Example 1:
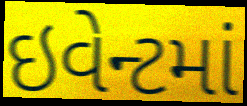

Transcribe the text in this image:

ઇવેન્ટમાં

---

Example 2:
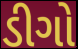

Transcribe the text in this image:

ડીગો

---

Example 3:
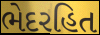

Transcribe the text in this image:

ભેદરહિત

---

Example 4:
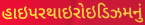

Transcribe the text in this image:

હાઇપરથાઇરોઇડિઝમનું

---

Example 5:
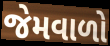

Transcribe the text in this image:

જેમવાળો